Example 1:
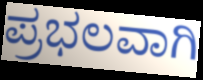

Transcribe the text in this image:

ಪ್ರಭಲವಾಗಿ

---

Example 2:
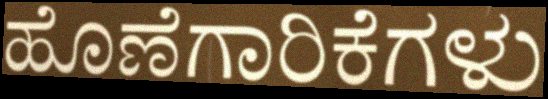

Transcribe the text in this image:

ಹೊಣೆಗಾರಿಕೆಗಳು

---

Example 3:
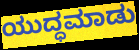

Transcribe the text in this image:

ಯುದ್ಧಮಾಡು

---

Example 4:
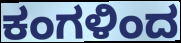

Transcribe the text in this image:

ಕಂಗಳಿಂದ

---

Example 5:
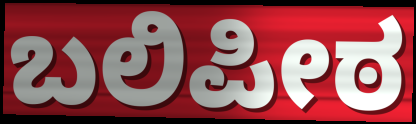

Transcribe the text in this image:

ಬಲಿಪೀಠ